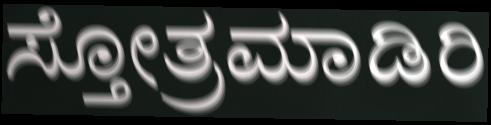
ಸ್ತೋತ್ರಮಾಡಿರಿ